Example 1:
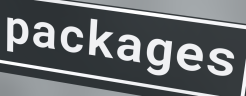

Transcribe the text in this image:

packages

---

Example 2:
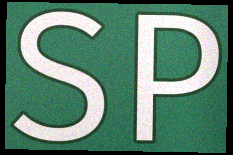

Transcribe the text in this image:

SP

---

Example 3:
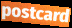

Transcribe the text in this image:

postcard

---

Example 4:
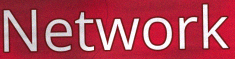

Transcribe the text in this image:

Network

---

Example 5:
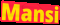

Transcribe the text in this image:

Mansi